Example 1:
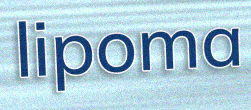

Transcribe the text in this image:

lipoma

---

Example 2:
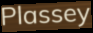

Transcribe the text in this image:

Plassey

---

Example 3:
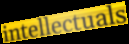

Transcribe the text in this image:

intellectuals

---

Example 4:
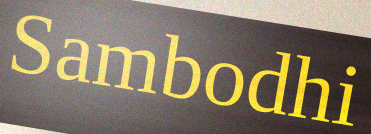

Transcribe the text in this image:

Sambodhi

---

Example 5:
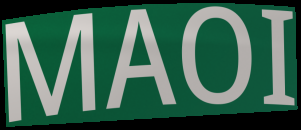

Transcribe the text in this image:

MAOI